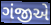
ગંજીએ